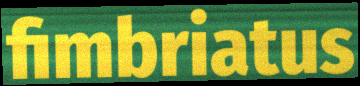
fimbriatus